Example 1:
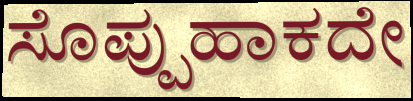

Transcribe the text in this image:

ಸೊಪ್ಪುಹಾಕದೇ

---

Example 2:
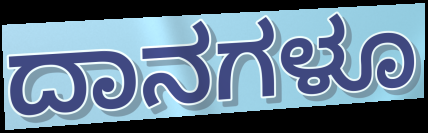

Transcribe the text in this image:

ದಾನಗಳೂ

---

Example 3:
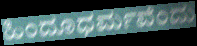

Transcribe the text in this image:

ಹಿಂದೂಧರ್ಮವೆಂದು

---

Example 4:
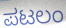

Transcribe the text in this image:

ಪಟಲಂ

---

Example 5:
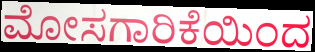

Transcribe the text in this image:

ಮೋಸಗಾರಿಕೆಯಿಂದ